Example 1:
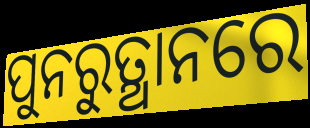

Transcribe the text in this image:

ପୁନରୁତ୍ଥାନରେ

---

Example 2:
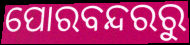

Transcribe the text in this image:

ପୋରବନ୍ଦରରୁ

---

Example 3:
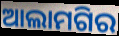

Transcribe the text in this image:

ଆଲାମଗିର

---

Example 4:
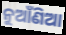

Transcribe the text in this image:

ନୁଆଁଣିଆ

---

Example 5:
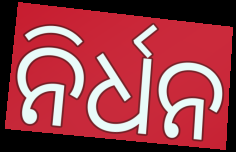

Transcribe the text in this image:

ନିର୍ଧନ